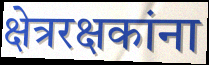
क्षेत्ररक्षकांना